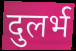
दुलर्भ